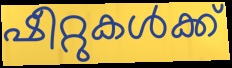
ഷീറ്റുകൾക്ക്